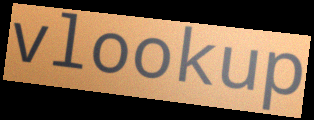
vlookup